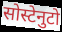
सोस्टेनुटो